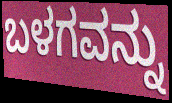
ಬಳಗವನ್ನು